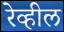
रेव्हील